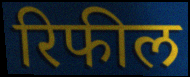
रिफील